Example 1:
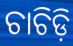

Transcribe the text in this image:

ଚାଚିଡ଼ି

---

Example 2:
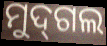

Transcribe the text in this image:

ମୁଦ୍‌ଗଲ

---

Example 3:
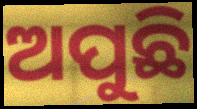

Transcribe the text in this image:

ଅପୁଛି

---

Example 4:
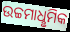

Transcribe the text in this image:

ଉଚ୍ଚମାଧୢମିକ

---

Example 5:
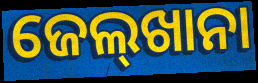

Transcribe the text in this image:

ଜେଲ୍‌ଖାନା